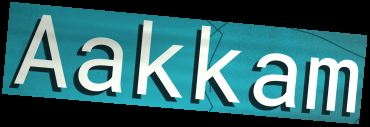
Aakkam